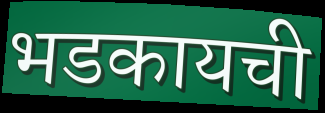
भडकायची